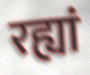
रह्यां